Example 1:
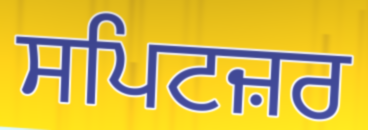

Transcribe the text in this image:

ਸਪਿਟਜ਼ਰ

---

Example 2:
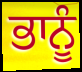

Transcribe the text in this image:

ਭਾਨੂੰ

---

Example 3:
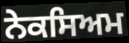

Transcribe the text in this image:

ਨੇਕਸਿਅਮ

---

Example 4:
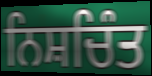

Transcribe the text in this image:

ਨਿਸ਼ਚਿੰਤ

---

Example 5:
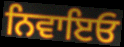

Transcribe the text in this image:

ਨਿਵਾਇਓ